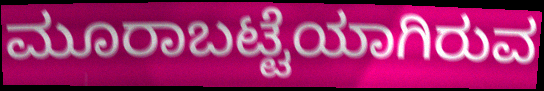
ಮೂರಾಬಟ್ಟೆಯಾಗಿರುವ